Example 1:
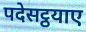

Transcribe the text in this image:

पदेसट्ठयाए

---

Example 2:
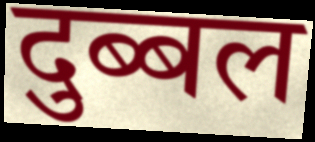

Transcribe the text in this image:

दुब्बल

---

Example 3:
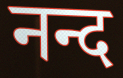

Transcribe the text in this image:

नन्द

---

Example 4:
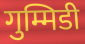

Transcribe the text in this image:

गुम्मिडी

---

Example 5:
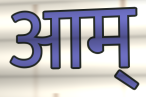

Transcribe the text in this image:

आम्